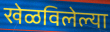
खेळविलेल्या